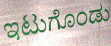
ಇಟುಗೊಂಡು